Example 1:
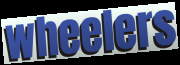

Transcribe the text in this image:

wheelers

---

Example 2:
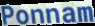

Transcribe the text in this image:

Ponnam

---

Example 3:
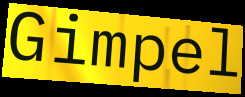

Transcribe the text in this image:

Gimpel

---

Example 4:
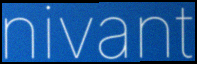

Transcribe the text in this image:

nivant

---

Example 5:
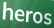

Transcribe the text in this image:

heros